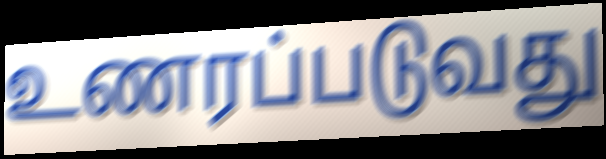
உணரப்படுவது